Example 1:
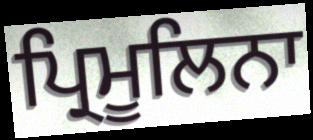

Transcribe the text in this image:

ਪ੍ਰਿਮੂਲਿਨਾ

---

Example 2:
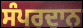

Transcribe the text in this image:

ਸੰਪਰਦਾਨ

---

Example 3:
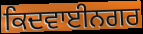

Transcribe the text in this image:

ਕਿਦਵਾਈਨਗਰ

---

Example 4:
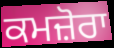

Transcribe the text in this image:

ਕਮਜ਼ੋਰਾ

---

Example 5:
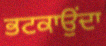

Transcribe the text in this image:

ਭਟਕਾਉਂਦਾ